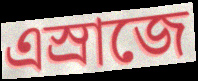
এস্রাজে